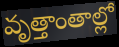
వృత్తాంతాల్లో